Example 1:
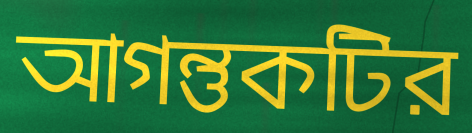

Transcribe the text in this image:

আগন্তুকটির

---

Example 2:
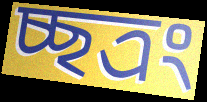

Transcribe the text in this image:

চ্ছত্রং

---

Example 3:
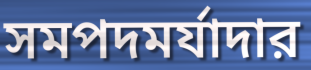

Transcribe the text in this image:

সমপদমর্যাদার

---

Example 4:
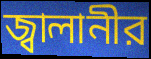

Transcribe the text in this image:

জ্বালানীর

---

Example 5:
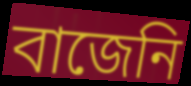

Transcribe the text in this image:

বাজেনি